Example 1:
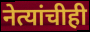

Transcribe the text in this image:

नेत्यांचीही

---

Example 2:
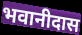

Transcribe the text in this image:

भवानीदास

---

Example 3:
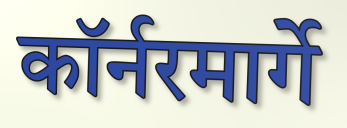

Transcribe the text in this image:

कॉर्नरमार्गे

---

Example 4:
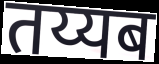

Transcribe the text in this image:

तय्यब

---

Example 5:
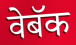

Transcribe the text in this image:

वेबॅक